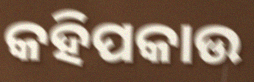
କହିପକାଉ